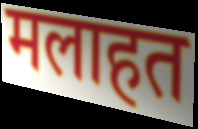
मलाहत